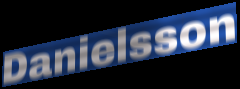
Danielsson